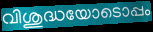
വിശുദ്ധയോടൊപ്പം